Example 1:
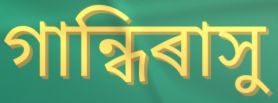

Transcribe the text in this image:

গান্ধিৰাসু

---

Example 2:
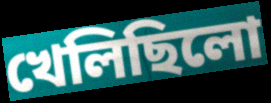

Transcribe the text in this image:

খেলিছিলো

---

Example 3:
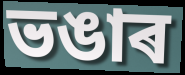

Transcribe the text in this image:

ভঙাৰ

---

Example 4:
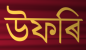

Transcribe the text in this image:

উফৰি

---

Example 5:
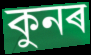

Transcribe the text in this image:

কুনৰ